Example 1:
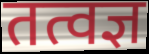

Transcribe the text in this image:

तत्वज्ञ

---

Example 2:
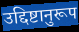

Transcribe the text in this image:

उद्दिष्टानुरूप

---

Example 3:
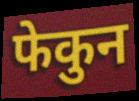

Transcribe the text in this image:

फेकुन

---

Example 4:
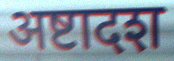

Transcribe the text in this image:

अष्टादश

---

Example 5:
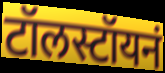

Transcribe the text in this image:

टॉलस्टॉयनं